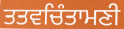
ਤਤਵਚਿੰਤਾਮਣੀ